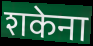
शकेना